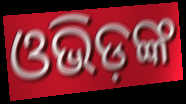
ଓଭିଡ଼ଙ୍କ